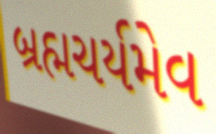
બ્રહ્મચર્યમેવ